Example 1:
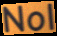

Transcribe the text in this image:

Nol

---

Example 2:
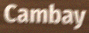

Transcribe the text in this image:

Cambay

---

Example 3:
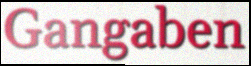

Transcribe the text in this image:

Gangaben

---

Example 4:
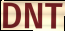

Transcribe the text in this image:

DNT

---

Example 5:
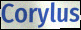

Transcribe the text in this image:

Corylus